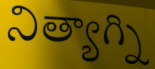
నిత్యాగ్ని